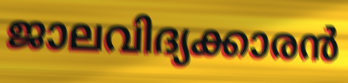
ജാലവിദ്യക്കാരൻ